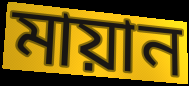
মায়ান